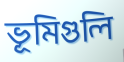
ভূমিগুলি